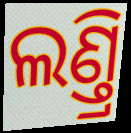
ଲଣ୍ତ୍ରି